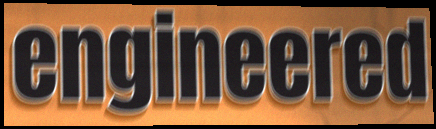
engineered